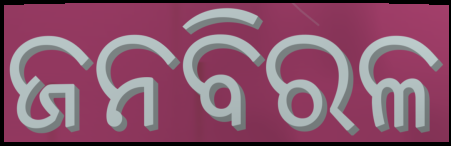
ଜନବିରଳ